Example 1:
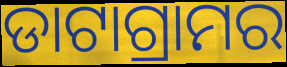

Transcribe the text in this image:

ଡାଟାଗ୍ରାମର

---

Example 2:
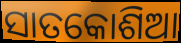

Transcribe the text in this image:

ସାତକୋଶିଆ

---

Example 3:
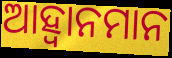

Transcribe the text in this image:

ଆହ୍ୱାନମାନ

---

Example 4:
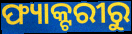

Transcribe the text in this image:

ଫ୍ୟାକ୍ଟରୀରୁ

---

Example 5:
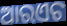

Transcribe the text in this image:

ଆରଏଚ